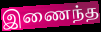
இணைந்த